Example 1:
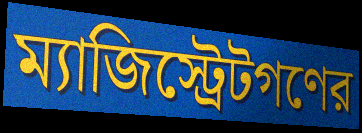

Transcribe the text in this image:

ম্যাজিস্ট্রেটগণের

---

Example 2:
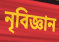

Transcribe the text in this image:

নৃবিজ্ঞান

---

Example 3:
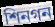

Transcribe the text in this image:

শিনগন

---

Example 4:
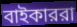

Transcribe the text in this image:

বাইকাররা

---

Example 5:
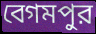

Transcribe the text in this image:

বেগমপুর